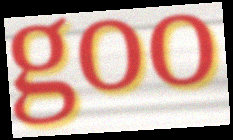
goo